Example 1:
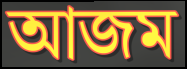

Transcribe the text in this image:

আজম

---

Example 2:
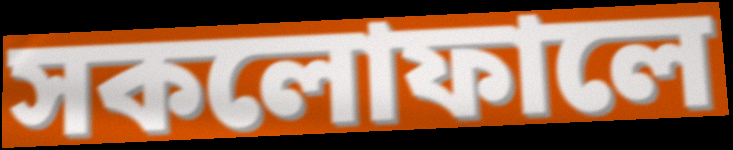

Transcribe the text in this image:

সকলোফালে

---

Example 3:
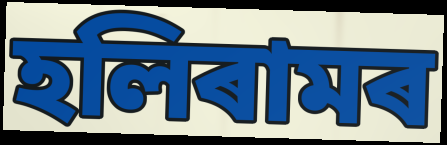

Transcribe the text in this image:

হলিৰামৰ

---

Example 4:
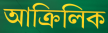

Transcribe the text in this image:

আক্ৰিলিক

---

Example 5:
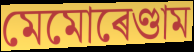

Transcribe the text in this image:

মেমোৰেণ্ডাম